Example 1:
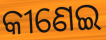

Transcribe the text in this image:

କୀଣେଇ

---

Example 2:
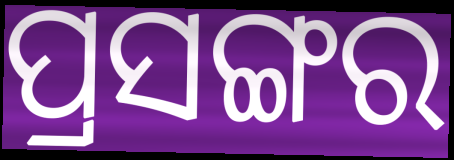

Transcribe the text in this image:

ପ୍ରସଙ୍ଗର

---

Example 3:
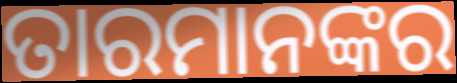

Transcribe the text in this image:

ତାରମାନଙ୍କର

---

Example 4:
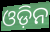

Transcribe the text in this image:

ଓଡ଼ିନ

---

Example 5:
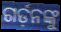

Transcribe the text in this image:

ଗର୍ଡ଼ନଙ୍କୁ